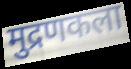
मुद्रणकला